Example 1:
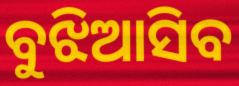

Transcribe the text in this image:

ବୁଝିଆସିବ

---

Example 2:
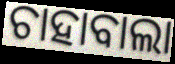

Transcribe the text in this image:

ଚାହାବାଲା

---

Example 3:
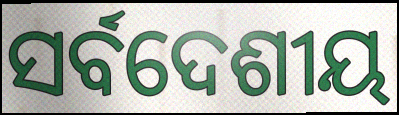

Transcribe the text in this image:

ସର୍ବଦେଶୀୟ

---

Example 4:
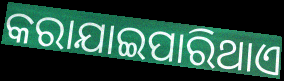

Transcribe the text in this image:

କରାଯାଇପାରିଥାଏ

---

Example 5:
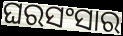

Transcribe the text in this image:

ଘରସଂସାର